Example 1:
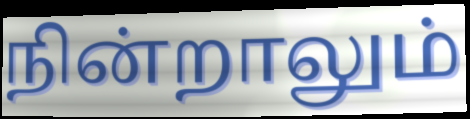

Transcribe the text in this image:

நின்றாலும்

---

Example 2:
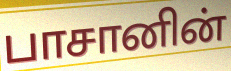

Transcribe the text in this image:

பாசானின்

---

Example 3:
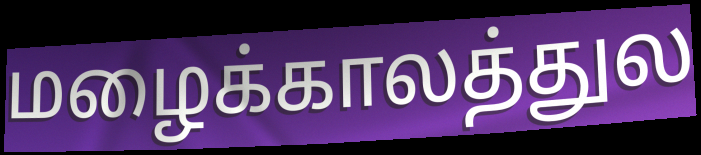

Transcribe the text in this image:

மழைக்காலத்துல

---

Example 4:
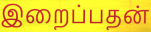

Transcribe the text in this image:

இறைப்பதன்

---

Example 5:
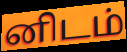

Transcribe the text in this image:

னிடம்